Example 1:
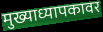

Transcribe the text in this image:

मुख्याध्यापकावर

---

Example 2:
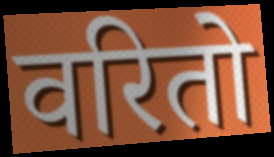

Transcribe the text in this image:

वरितो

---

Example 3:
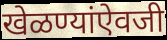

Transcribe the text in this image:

खेळण्यांऐवजी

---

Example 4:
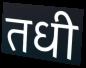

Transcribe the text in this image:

तधी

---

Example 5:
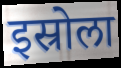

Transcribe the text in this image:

इस्रोला